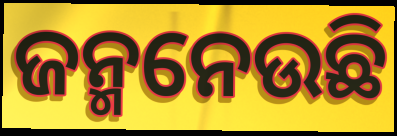
ଜନ୍ମନେଉଛି